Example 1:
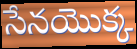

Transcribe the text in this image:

సేనయొక్క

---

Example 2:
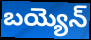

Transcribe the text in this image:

బయ్యెన్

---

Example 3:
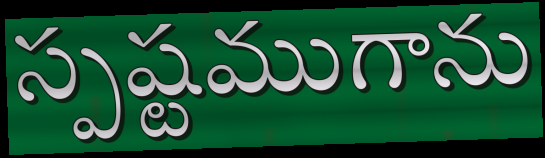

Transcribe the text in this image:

స్పష్టముగాను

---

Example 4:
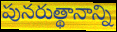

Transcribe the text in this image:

పునరుత్థానాన్ని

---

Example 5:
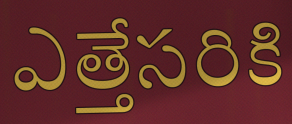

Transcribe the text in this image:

ఎత్తేసరికి